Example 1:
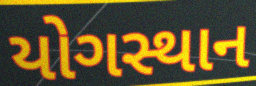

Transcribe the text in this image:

યોગસ્થાન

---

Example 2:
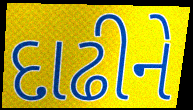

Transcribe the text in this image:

દાઢીને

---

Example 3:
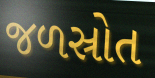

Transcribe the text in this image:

જળસ્રોત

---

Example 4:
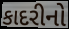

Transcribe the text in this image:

કાદરીનો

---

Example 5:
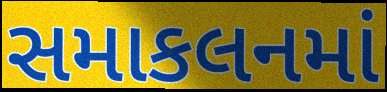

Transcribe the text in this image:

સમાકલનમાં